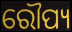
ରୌପ୍ୟ